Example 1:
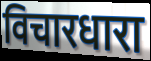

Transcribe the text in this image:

विचारधारा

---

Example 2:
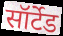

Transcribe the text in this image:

सॉर्टेड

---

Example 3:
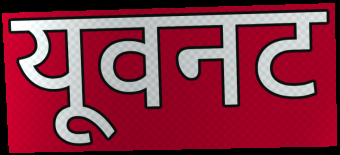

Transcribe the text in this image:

यूवनट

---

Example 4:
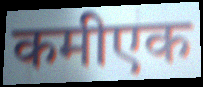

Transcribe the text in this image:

कमीएक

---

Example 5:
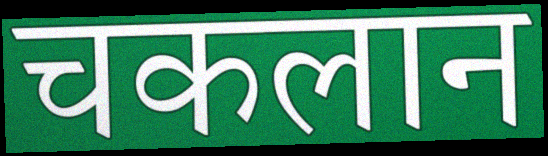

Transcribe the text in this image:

चकलान